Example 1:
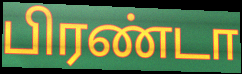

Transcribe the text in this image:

பிரண்டா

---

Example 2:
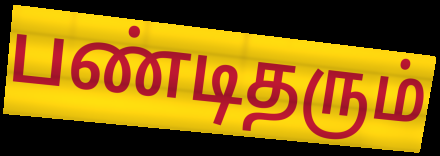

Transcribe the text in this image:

பண்டிதரும்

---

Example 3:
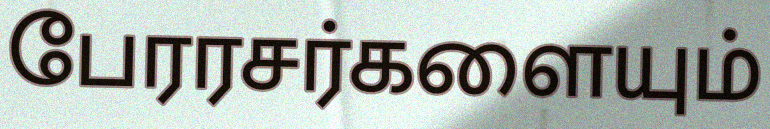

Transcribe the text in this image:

பேரரசர்களையும்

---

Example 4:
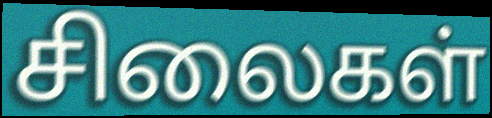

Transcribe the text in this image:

சிலைகள்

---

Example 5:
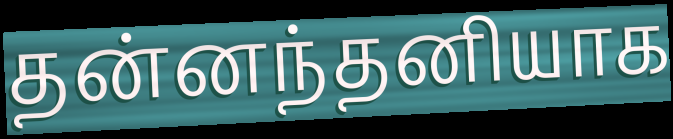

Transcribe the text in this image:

தன்னந்தனியாக